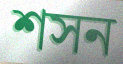
শসন